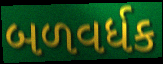
બળવર્ધક